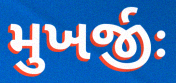
મુખર્જીઃ